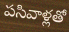
పసివాళ్లతో